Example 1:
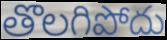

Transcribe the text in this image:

తొలగిపోదు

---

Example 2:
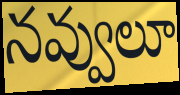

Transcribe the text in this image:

నవ్వులూ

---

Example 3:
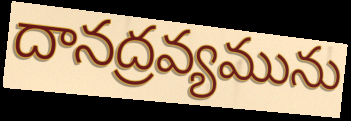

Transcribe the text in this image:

దానద్రవ్యమును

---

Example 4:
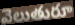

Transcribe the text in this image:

వెలుతురూ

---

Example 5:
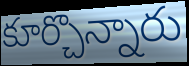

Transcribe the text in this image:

కూర్చొన్నారు